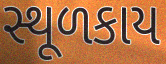
સ્થૂળકાય